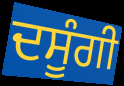
ਦਸੂੰਗੀ